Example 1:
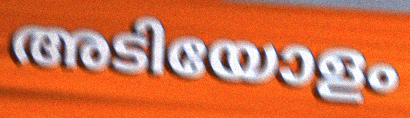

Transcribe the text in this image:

അടിയോളം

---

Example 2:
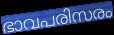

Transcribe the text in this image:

ഭാവപരിസരം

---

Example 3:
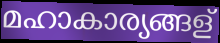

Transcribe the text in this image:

മഹാകാര്യങ്ങള്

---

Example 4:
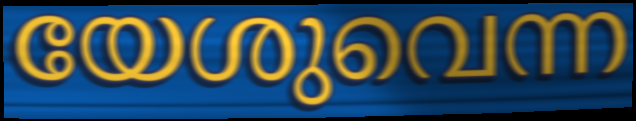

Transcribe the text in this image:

യേശുവെന്ന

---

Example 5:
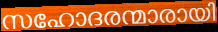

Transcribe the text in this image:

സഹോദരന്മാരായി